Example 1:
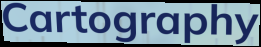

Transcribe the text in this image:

Cartography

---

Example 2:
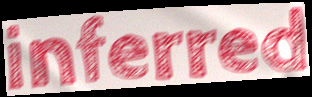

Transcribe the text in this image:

inferred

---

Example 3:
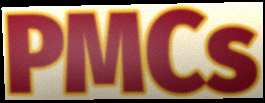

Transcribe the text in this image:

PMCs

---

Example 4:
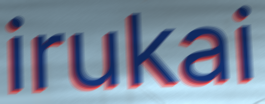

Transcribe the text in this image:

irukai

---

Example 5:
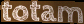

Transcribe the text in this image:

totam